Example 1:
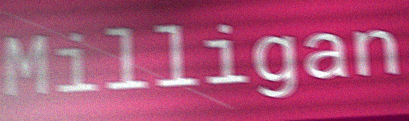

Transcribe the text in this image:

Milligan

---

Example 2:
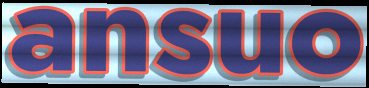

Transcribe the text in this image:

ansuo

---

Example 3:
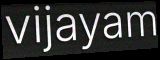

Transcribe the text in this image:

vijayam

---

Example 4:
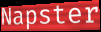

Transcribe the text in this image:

Napster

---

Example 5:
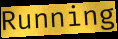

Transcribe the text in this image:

Running